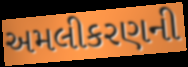
અમલીકરણની